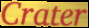
Crater